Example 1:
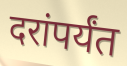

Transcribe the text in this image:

दरांपर्यंत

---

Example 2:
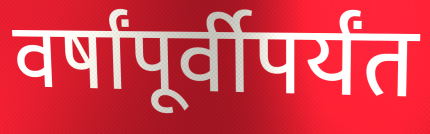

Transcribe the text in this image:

वर्षांपूर्वीपर्यंत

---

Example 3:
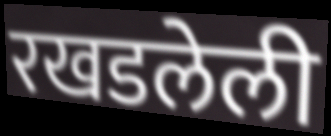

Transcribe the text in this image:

रखडलेली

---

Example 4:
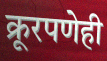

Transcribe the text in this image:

क्रूरपणेही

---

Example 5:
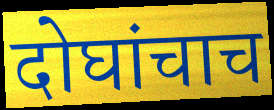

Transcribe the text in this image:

दोघांचाच